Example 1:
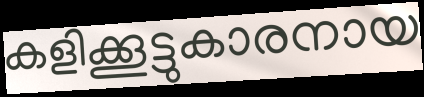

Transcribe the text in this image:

കളിക്കൂട്ടുകാരനായ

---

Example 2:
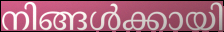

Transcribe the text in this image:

നിങ്ങൾക്കായി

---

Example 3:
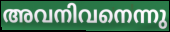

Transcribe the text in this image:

അവനിവനെന്നു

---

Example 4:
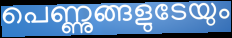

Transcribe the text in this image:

പെണ്ണുങ്ങളുടേയും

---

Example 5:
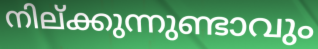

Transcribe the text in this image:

നില്ക്കുന്നുണ്ടാവും